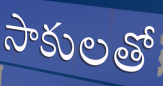
సాకులతో